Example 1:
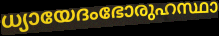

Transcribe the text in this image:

ധ്യായേദംഭോരുഹസ്ഥാ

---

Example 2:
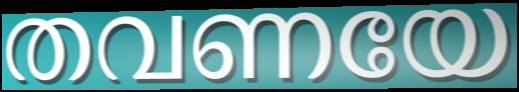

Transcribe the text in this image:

തവണയേ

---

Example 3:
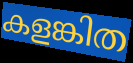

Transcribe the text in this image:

കളങ്കിത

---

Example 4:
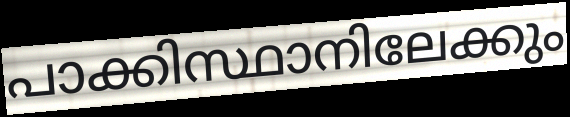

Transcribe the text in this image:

പാക്കിസ്ഥാനിലേക്കും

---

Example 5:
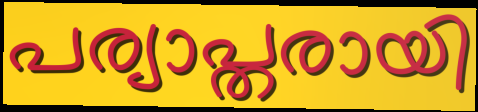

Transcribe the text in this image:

പര്യാപ്തരായി